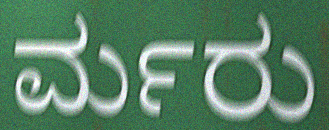
ರ್ಮರು